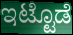
ಇಟ್ಟೊಡೆ